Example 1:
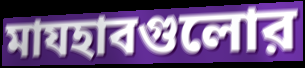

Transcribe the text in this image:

মাযহাবগুলোর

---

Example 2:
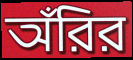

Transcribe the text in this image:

অঁরির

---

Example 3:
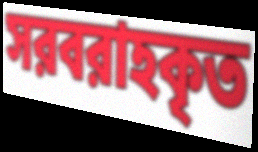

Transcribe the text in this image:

সরবরাহকৃত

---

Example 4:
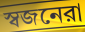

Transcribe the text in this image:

স্বজনেরা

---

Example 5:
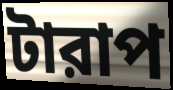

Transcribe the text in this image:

টারাপ